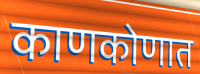
काणकोणात